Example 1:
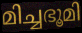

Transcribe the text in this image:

മിച്ചഭൂമി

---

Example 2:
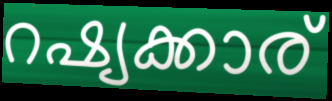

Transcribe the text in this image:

റഷ്യക്കാര്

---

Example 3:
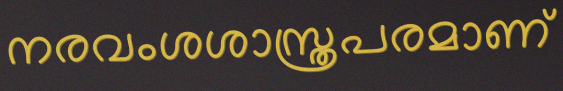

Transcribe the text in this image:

നരവംശശാസ്ത്രപരമാണ്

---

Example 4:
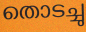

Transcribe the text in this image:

തൊടച്ചു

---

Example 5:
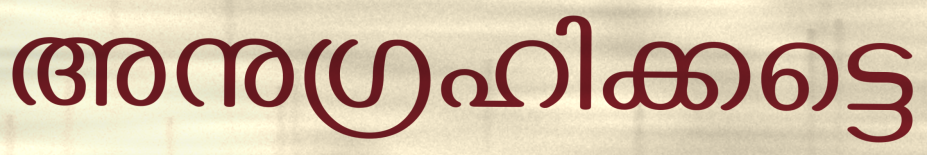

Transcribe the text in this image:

അനുഗ്രഹിക്കട്ടെ